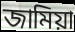
জামিয়া